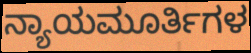
ನ್ಯಾಯಮೂರ್ತಿಗಳ